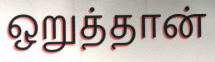
ஒறுத்தான்